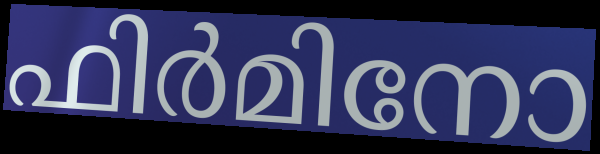
ഫിർമിനോ